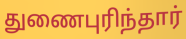
துணைபுரிந்தார்